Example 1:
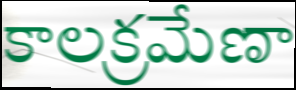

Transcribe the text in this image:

కాలక్రమేణా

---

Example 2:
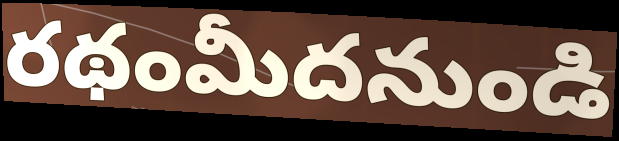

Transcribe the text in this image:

రథంమీదనుండి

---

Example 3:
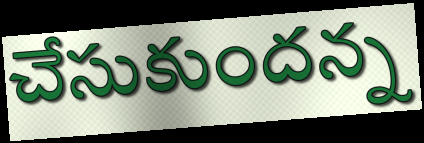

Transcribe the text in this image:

చేసుకుందన్న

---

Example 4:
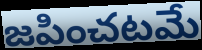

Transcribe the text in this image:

జపించటమే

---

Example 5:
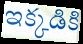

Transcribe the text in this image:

ఇక్కడికి